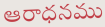
ఆరాధనము